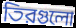
তিরগুলো